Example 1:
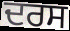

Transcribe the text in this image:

ਦਰਸ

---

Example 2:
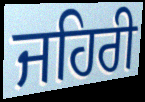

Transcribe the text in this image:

ਜਹਿਰੀ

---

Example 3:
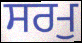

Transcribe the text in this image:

ਸਰ੍ਮੁ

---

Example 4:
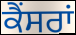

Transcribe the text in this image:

ਕੈਂਸਰਾਂ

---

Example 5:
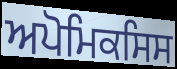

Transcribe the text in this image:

ਅਪੋਮਿਕਸਿਸ